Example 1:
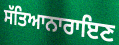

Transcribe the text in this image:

ਸੱਤਿਆਨਾਰਾਇਣ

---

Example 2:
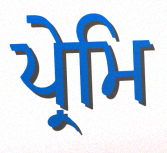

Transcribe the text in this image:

ਪ੍ਰੇਮਿ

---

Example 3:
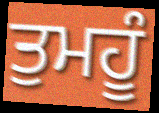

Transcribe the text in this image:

ਤੁਮਹੂੰ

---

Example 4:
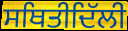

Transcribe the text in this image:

ਸਥਿਤੀਦਿੱਲੀ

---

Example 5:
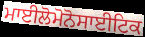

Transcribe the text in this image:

ਮਾਈਲੋਮੋਨੋਸਾਈਟਿਕ